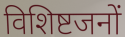
विशिष्टजनों